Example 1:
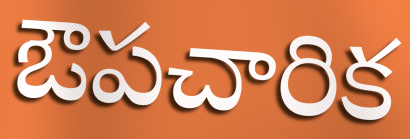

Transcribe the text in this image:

ఔపచారిక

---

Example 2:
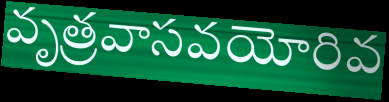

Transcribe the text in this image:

వృత్రవాసవయోరివ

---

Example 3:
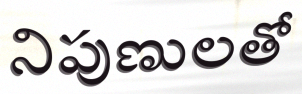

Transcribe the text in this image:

నిపుణులతో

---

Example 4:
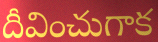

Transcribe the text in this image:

దీవించుగాక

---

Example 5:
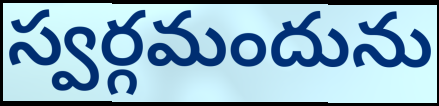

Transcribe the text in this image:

స్వర్గమందును